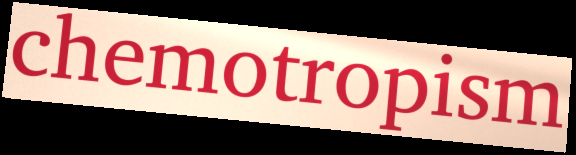
chemotropism